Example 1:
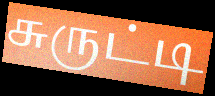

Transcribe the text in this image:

சுருட்டி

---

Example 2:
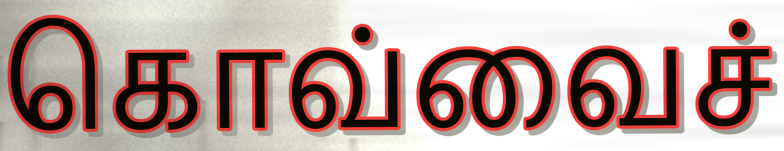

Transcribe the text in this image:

கொவ்வைச்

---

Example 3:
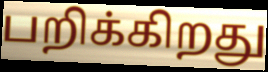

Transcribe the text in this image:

பறிக்கிறது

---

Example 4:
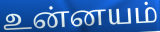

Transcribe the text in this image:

உன்னயம்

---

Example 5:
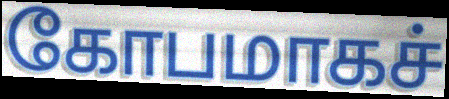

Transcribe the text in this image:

கோபமாகச்